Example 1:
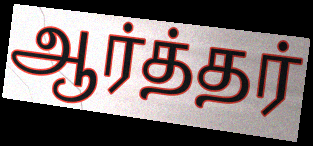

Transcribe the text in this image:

ஆர்த்தர்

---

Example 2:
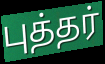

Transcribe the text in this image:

புத்தர்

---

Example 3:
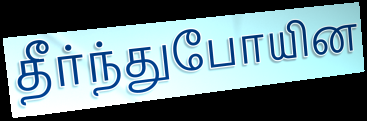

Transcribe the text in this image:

தீர்ந்துபோயின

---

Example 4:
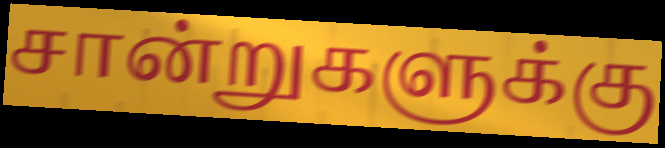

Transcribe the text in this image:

சான்றுகளுக்கு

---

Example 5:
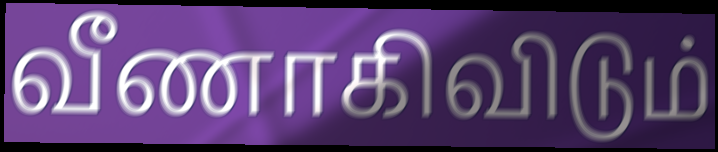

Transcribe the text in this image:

வீணாகிவிடும்